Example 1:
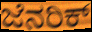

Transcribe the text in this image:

ಜೆನರಿಕ್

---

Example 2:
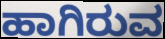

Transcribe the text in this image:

ಹಾಗಿರುವ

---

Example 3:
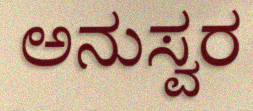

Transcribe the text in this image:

ಅನುಸ್ವರ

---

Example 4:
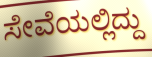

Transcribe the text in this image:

ಸೇವೆಯಲ್ಲಿದ್ದು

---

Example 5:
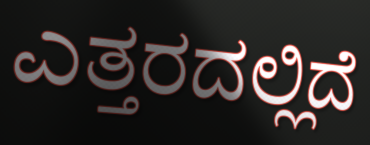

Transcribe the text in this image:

ಎತ್ತರದಲ್ಲಿದೆ